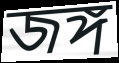
জঙ্গ